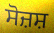
ਸੋਜ਼ਸ਼